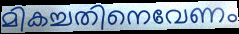
മികച്ചതിനെവേണം